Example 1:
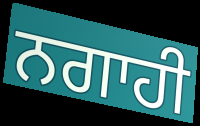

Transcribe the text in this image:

ਨਗਾਹੀ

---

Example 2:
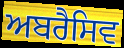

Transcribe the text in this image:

ਅਬਰੈਸਿਵ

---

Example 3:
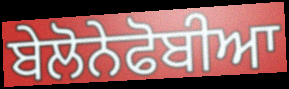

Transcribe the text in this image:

ਬੇਲੋਨੇਫੋਬੀਆ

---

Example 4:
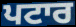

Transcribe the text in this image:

ਪਟਾਰ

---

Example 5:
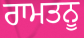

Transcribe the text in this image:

ਰਾਮਤਨੂ